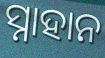
ସ୍ନାହାନ